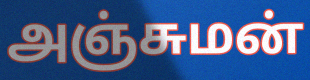
அஞ்சுமன்